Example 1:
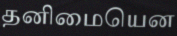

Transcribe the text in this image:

தனிமையென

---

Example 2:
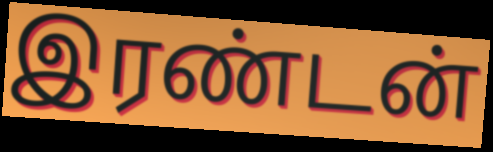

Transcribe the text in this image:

இரண்டன்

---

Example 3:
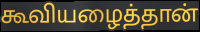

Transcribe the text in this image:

கூவியழைத்தான்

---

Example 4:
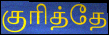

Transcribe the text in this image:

குரித்தே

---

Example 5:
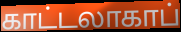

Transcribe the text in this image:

காட்டலாகாப்